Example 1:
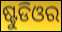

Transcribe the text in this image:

ଷ୍ଟୁଡିଓର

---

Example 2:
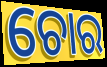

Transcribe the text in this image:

ଚୋର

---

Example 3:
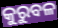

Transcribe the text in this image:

କୁରୁବଳ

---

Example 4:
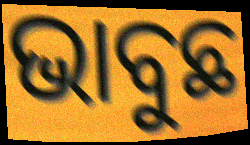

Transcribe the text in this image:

ଭାବୁଛ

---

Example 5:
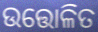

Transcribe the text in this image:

ଉତ୍ତୋଳିତ